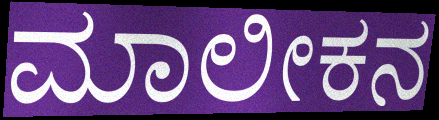
ಮಾಲೀಕನ